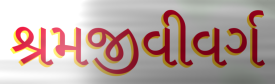
શ્રમજીવીવર્ગ